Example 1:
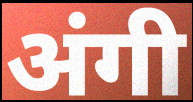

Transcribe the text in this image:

अंगी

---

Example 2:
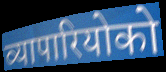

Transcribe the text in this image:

व्यापारियोको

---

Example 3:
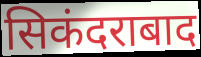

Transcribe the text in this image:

सिकंदराबाद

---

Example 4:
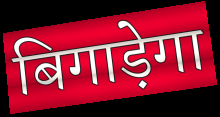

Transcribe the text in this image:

बिगाड़ेगा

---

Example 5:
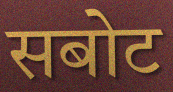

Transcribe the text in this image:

सबोट